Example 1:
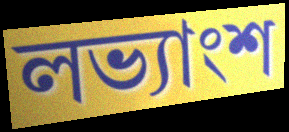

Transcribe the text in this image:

লভ্যাংশ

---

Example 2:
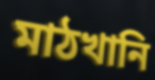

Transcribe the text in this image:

মাঠখানি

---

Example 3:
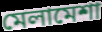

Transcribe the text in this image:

মেলামেশা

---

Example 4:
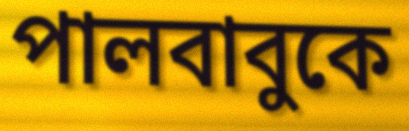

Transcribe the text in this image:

পালবাবুকে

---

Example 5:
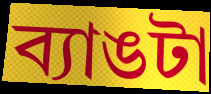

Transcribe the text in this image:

ব্যাঙটা